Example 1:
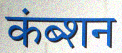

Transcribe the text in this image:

कंब्शन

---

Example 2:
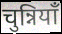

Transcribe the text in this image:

चुन्नियाँ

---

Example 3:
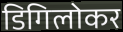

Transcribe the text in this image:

डिगिलोकर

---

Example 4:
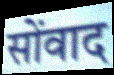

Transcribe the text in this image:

सोंवाद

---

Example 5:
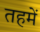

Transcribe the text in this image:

तहमें